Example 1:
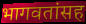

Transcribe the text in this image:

भागवतांसह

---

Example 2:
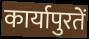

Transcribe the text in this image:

कार्यापुरतें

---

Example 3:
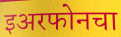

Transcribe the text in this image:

इअरफोनचा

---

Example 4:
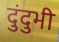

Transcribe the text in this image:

दुंदुभी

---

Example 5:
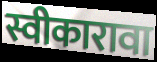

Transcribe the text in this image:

स्वीकारावा